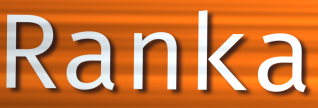
Ranka